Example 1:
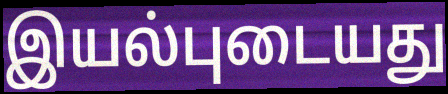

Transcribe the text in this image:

இயல்புடையது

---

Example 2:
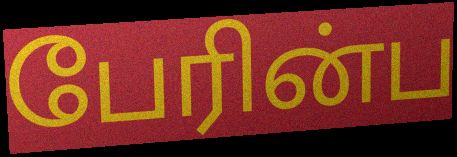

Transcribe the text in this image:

பேரின்ப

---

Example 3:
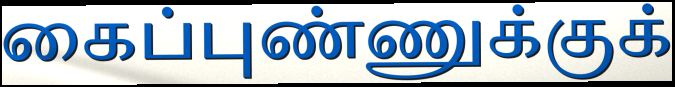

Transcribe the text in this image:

கைப்புண்ணுக்குக்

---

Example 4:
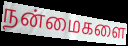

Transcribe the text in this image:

நன்மைகளை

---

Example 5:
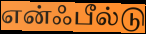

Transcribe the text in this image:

என்ஃபீல்டு